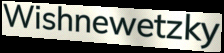
Wishnewetzky